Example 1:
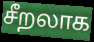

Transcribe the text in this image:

சீறலாக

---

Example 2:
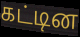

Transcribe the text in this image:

கட்டின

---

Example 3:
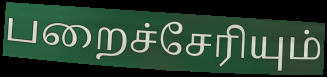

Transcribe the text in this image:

பறைச்சேரியும்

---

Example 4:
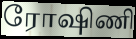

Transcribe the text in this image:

ரோஷிணி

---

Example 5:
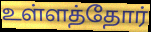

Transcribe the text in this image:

உள்ளத்தோர்